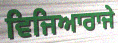
ਵਿਜਿਆਰਾਜੇ